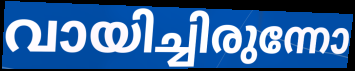
വായിച്ചിരുന്നോ